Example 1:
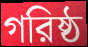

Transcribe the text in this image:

গরিষ্ঠ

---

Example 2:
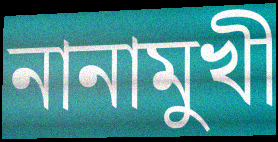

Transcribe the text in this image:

নানামুখী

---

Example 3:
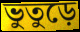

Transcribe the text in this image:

ভুতুড়ে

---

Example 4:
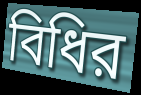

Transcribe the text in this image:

বিধির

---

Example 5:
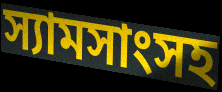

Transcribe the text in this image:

স্যামসাংসহ